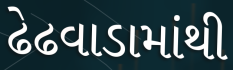
ઢેઢવાડામાંથી